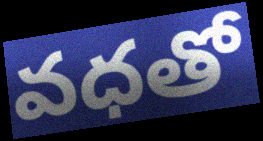
వధతో